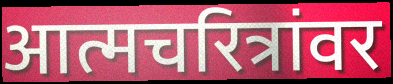
आत्मचरित्रांवर